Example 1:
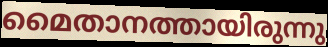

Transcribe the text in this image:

മൈതാനത്തായിരുന്നു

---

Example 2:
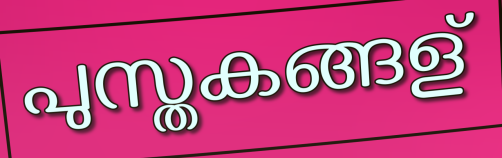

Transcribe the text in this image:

പുസ്തകങ്ങള്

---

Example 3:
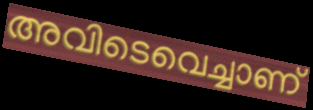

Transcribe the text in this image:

അവിടെവെച്ചാണ്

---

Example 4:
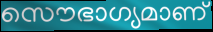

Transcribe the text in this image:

സൌഭാഗ്യമാണ്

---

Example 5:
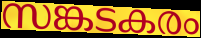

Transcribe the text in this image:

സങ്കടകരം